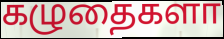
கழுதைகளா